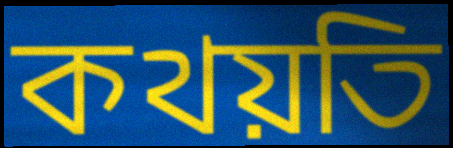
কথয়তি